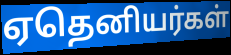
ஏதெனியர்கள்